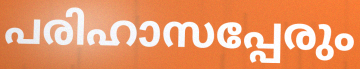
പരിഹാസപ്പേരും